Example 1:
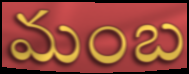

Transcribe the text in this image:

మంబ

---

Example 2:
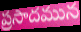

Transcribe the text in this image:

ప్రసాదమున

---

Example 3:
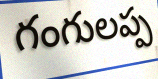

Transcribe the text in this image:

గంగులప్ప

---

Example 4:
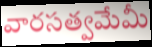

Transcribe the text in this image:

వారసత్వమేమీ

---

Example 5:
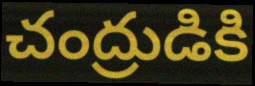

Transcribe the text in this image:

చంద్రుడికి